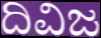
ದಿವಿಜ